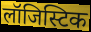
लॉजिस्टिक